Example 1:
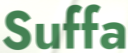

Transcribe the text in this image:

Suffa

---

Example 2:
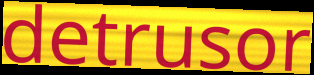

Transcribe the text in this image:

detrusor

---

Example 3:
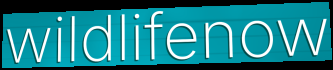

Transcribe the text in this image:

wildlifenow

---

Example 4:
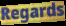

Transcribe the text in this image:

Regards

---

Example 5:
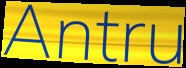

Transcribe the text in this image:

Antru